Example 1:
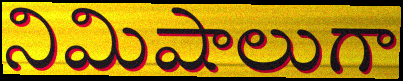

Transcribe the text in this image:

నిమిషాలుగా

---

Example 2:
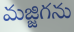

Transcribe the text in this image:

మజ్జిగను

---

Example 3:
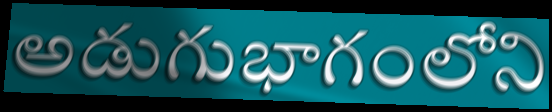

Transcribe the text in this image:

అడుగుభాగంలోని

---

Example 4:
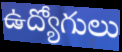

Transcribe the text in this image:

ఉద్యోగులు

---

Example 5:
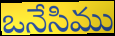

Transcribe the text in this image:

ఒనేసిము